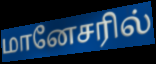
மானேசரில்